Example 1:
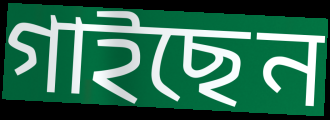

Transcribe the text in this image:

গাইছেন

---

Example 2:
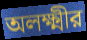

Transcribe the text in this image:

অলক্ষ্মীর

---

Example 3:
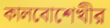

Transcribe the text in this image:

কালবোশেখীর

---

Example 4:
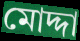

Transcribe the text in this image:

মোদ্দা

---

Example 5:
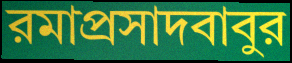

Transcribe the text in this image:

রমাপ্রসাদবাবুর